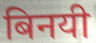
बिनयी